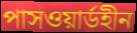
পাসওয়ার্ডহীন